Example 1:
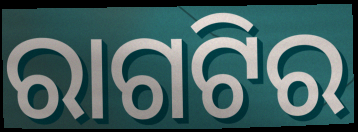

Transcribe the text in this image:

ରାଗଟିର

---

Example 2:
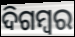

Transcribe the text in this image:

ଦିଗମ୍ବର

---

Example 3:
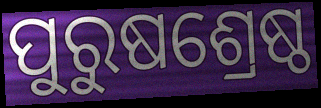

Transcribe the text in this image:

ପୁରୁଷଶ୍ରେଷ୍ଠ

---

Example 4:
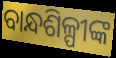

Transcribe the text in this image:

ବାନ୍ଧଶିଳ୍ପୀଙ୍କ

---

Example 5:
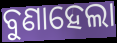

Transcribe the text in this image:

ବୁଣାହେଲା